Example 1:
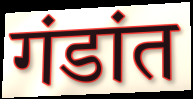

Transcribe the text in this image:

गंडांत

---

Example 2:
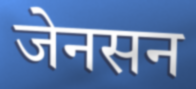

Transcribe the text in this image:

जेनसन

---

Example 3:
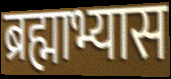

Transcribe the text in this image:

ब्रह्माभ्यास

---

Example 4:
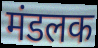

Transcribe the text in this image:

मंडलक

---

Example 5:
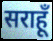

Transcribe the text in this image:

सराहूँ